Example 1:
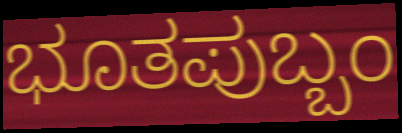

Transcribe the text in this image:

ಭೂತಪುಬ್ಬಂ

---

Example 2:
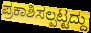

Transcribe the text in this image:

ಪ್ರಕಾಶಿಸಲ್ಪಟ್ಟದ್ದು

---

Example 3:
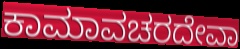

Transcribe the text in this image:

ಕಾಮಾವಚರದೇವಾ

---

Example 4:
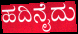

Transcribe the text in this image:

ಹದಿನೈದು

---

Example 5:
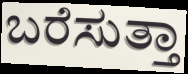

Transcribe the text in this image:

ಬರೆಸುತ್ತಾ